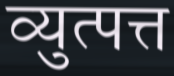
व्युत्पत्त